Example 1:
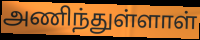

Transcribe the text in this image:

அணிந்துள்ளாள்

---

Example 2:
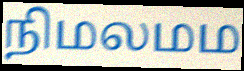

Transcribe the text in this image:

நிமலமம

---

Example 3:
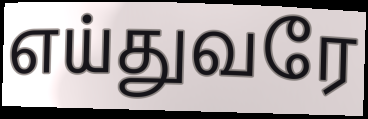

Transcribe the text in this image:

எய்துவரே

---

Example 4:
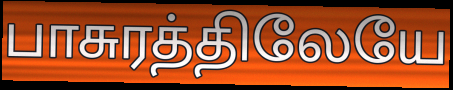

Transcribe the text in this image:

பாசுரத்திலேயே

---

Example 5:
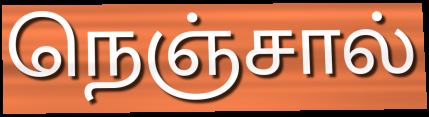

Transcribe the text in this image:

நெஞ்சால்